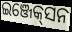
ଇଞ୍ଜେକ୍‌ସନ